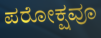
ಪರೋಕ್ಷವೂ